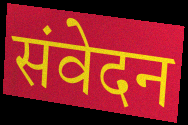
संवेदन